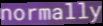
normally